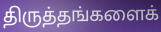
திருத்தங்களைக்